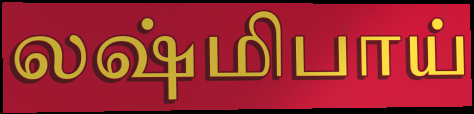
லஷ்மிபாய்